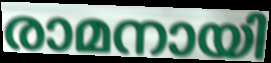
രാമനായി